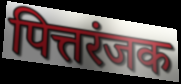
पित्तरंजक